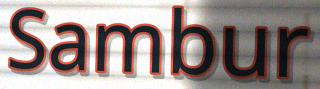
Sambur